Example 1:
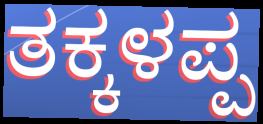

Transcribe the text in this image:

ತಕ್ಕಳಪ್ಪ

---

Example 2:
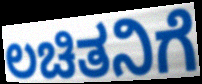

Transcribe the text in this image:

ಲಚಿತನಿಗೆ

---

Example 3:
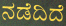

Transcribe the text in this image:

ನಡೆದಿದೆ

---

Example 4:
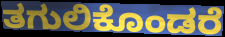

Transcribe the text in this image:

ತಗುಲಿಕೊಂಡರೆ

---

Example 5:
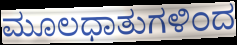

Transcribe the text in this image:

ಮೂಲಧಾತುಗಳಿಂದ